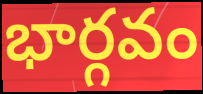
భార్గవం